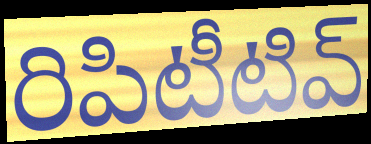
రిపిటీటివ్